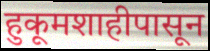
हुकूमशाहीपासून